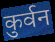
कुर्वन